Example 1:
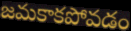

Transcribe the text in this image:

జమకాకపోవడం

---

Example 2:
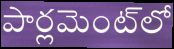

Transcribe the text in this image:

పార్లమెంట్‌లో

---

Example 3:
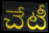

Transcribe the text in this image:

చేటీ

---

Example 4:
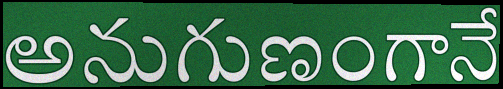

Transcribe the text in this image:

అనుగుణంగానే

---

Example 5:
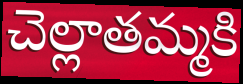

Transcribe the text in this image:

చెల్లాతమ్మకి